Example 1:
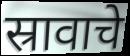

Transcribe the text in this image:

स्रावाचे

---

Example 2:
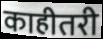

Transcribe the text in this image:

काहीतरी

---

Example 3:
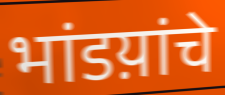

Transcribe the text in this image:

भांडय़ांचे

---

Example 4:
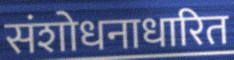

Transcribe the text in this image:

संशोधनाधारित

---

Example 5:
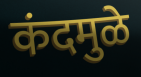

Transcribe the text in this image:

कंदमुळे